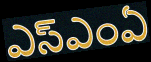
ఎస్ఎంఏ